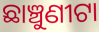
ଛାଞ୍ଚୁଣୀଟା